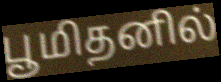
பூமிதனில்